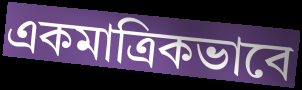
একমাত্রিকভাবে